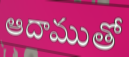
ఆదాముతో